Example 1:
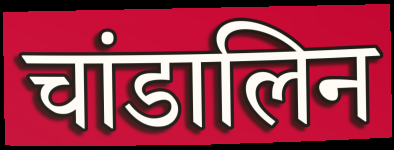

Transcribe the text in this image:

चांडालिन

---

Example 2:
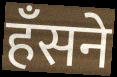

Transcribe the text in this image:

हँसने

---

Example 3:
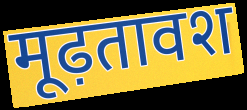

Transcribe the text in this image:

मूढ़तावश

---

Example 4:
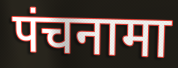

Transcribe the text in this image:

पंचनामा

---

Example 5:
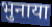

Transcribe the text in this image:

भुनाया